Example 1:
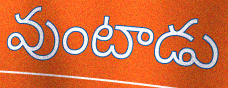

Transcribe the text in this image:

వుంటాడు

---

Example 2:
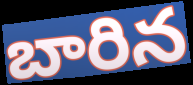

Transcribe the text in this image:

బారిన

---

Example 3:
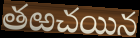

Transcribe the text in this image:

తఱచయిన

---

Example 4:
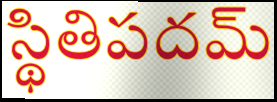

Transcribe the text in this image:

స్థితిపదమ్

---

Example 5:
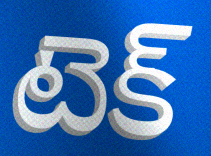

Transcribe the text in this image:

టెక్